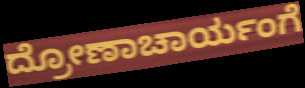
ದ್ರೋಣಾಚಾರ್ಯಂಗೆ